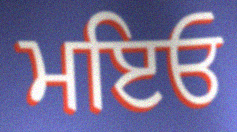
ਮਇਓ